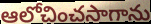
ఆలోచించసాగాను